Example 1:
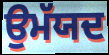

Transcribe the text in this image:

ਉਮੱਯਦ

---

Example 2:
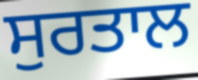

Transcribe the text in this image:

ਸੁਰਤਾਲ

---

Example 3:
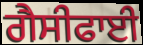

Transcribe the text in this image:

ਗੈਸੀਫਾਈ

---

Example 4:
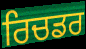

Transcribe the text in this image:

ਰਿਚਡਰ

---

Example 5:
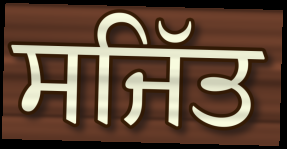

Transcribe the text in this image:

ਸਜਿੱਤ